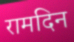
रामदिन